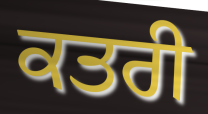
ਕਤਰੀ